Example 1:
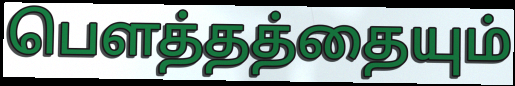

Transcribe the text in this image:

பெளத்தத்தையும்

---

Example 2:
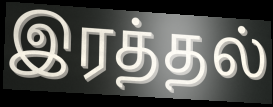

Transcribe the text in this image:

இரத்தல்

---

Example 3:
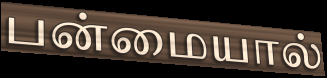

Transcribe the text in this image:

பன்மையால்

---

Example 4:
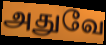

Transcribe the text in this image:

அதுவே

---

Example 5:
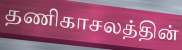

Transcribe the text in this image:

தணிகாசலத்தின்